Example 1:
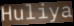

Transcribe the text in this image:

Huliya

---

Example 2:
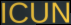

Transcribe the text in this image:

ICUN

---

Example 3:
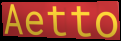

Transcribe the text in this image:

Aetto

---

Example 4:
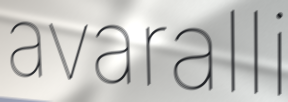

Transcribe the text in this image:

avaralli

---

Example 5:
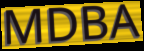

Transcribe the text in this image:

MDBA